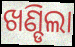
ଖଣ୍ଡିଲା